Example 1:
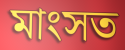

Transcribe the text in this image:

মাংসত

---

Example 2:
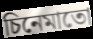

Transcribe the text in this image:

চিনেমাতো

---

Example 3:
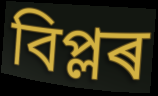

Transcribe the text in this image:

বিপ্লৰ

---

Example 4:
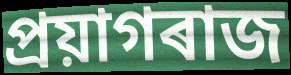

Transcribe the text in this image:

প্ৰয়াগৰাজ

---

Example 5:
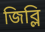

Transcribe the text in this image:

জিব্লি